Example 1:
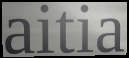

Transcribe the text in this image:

aitia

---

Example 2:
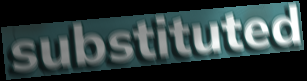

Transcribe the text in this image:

substituted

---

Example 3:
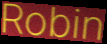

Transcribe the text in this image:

Robin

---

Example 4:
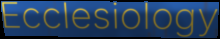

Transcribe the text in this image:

Ecclesiology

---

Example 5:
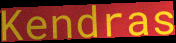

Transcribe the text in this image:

Kendras